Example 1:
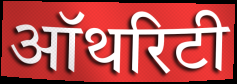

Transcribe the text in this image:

ऑथरिटी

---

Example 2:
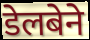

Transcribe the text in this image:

डेलबेने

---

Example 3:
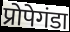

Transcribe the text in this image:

प्रोपेगंडा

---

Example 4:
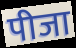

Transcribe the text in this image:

पीजा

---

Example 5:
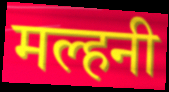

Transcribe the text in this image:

मल्हनी